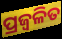
ପ୍ରଜ୍ୱଳିତ